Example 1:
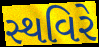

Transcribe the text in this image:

સ્થવિરે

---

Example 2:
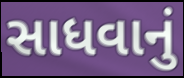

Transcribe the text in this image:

સાધવાનું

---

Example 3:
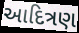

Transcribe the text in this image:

આદિત્રણ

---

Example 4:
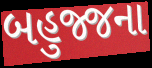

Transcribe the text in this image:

બહુજ્જના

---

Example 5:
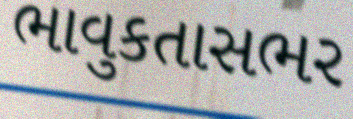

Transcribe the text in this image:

ભાવુકતાસભર